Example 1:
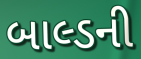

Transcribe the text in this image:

બાલ્ડની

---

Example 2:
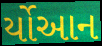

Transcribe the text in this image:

ર્યોઆન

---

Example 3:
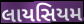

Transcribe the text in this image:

લાયસિયમ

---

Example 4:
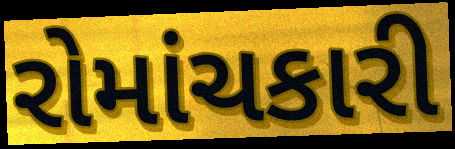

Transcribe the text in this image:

રોમાંચકારી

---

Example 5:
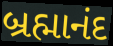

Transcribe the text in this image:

બ્રહ્માનંદ